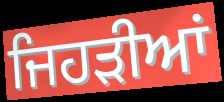
ਜਿਹੜੀਆਂ